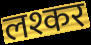
लश्कर